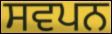
ਸਵਪਨ